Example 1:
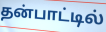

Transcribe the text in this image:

தன்பாட்டில்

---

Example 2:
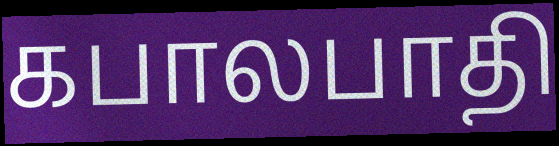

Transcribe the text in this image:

கபாலபாதி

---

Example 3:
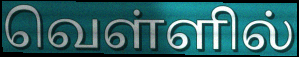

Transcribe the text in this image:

வெள்ளில்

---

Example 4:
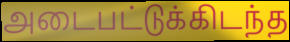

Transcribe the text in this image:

அடைபட்டுக்கிடந்த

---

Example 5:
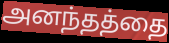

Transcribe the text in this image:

அனந்தத்தை